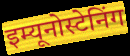
इम्यूनोस्टेनिंग